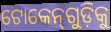
ଟୋକେନ୍‌ଗୁଡ଼ିକୁ